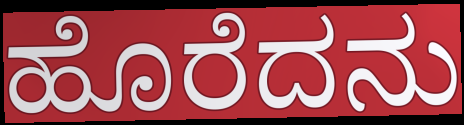
ಹೊರೆದನು